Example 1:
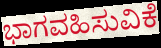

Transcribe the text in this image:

ಭಾಗವಹಿಸುವಿಕೆ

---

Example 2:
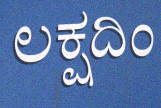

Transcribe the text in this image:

ಲಕ್ಷದಿಂ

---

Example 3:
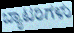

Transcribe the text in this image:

ಬ್ಯಾಟರಿಗಳು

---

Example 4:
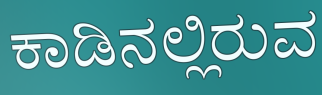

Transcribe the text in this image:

ಕಾಡಿನಲ್ಲಿರುವ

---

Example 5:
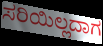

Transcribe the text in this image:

ಸರಿಯಿಲ್ಲದಾಗ